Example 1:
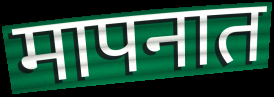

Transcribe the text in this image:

मापनात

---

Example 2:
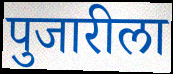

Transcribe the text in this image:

पुजारीला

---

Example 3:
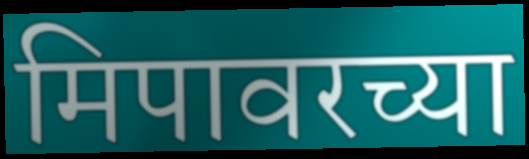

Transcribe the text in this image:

मिपावरच्या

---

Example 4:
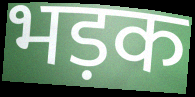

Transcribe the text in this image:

भड़क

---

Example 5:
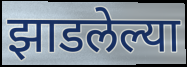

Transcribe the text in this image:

झाडलेल्या